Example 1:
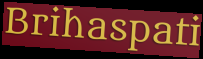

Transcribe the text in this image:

Brihaspati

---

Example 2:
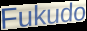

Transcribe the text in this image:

Fukudo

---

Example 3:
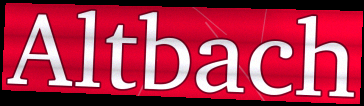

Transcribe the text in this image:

Altbach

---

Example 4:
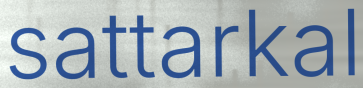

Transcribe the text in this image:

sattarkal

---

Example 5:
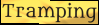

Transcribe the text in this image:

Tramping